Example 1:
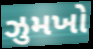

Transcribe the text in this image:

ઝુમખો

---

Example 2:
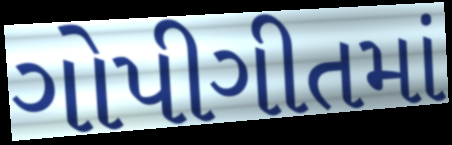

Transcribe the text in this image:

ગોપીગીતમાં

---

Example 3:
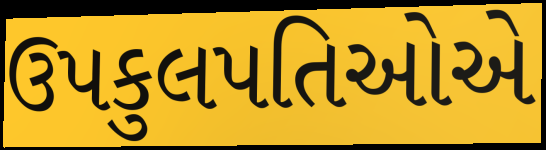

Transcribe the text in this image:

ઉપકુલપતિઓએ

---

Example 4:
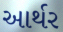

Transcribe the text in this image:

આર્થર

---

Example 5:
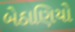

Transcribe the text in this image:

બેઠાણિયો